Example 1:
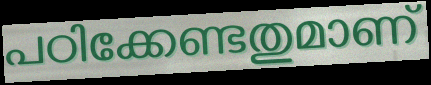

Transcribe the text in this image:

പഠിക്കേണ്ടതുമാണ്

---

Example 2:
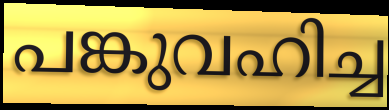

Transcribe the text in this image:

പങ്കുവഹിച്ച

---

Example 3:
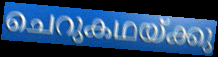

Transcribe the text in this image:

ചെറുകഥയ്ക്കു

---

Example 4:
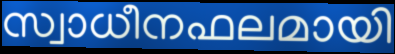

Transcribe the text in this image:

സ്വാധീനഫലമായി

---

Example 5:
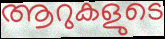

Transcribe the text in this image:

ആറുകളുടെ